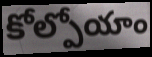
కోల్పోయాం